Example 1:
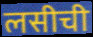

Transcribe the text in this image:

लसीची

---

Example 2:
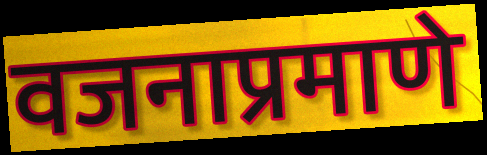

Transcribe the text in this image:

वजनाप्रमाणे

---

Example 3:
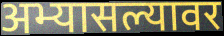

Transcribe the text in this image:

अभ्यासल्यावर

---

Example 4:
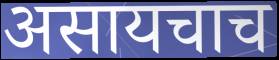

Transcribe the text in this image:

असायचाच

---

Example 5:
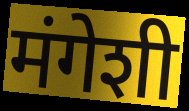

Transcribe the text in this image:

मंगेशी